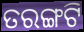
ତରଙ୍ଗଟି